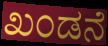
ಖಂಡನೆ